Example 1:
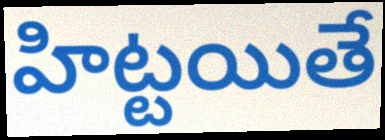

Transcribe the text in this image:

హిట్టయితే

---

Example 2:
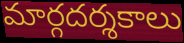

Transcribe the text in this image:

మార్గదర్శకాలు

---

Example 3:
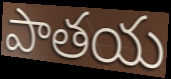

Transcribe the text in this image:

పాతయ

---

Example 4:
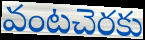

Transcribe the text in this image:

వంటచెరకు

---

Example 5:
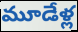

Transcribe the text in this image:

మూడేళ్ల